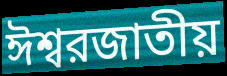
ঈশ্বরজাতীয়